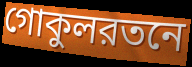
গোকুলরতনে